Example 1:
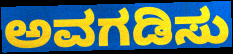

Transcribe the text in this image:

ಅವಗಡಿಸು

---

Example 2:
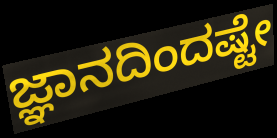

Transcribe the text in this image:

ಜ್ಞಾನದಿಂದಷ್ಟೇ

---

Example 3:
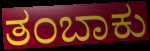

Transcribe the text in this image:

ತಂಬಾಕು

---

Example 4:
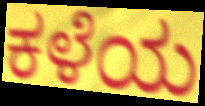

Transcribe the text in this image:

ಕಳೆಯ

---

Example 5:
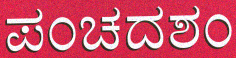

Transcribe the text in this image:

ಪಂಚದಶಂ